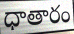
ధాతారం